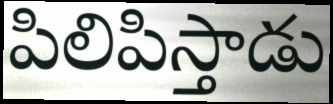
పిలిపిస్తాడు